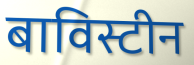
बाविस्टीन